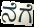
ನೆಗೆ